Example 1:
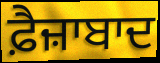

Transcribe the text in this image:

ਫ਼ੈਜ਼ਾਬਾਦ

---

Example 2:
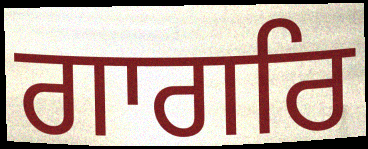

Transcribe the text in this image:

ਗਾਗਰਿ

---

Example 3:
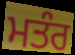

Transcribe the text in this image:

ਮਤੰਰ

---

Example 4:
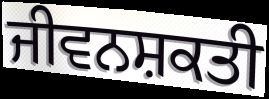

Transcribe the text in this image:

ਜੀਵਨਸ਼ਕਤੀ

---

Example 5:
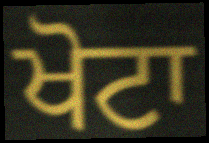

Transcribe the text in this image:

ਖੋਟਾ